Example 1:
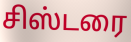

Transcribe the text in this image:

சிஸ்டரை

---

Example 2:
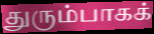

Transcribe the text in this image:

துரும்பாகக்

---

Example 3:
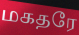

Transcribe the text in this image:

மகதரே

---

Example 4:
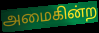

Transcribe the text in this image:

அமைகின்ற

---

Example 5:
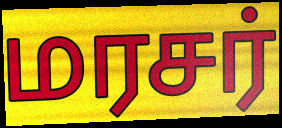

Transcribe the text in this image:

மரசர்